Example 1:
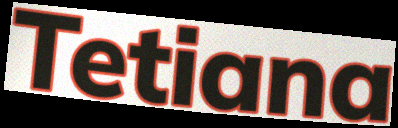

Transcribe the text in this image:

Tetiana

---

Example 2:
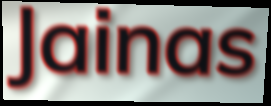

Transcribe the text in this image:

Jainas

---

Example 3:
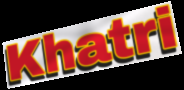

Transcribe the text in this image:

Khatri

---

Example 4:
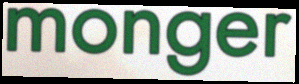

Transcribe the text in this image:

monger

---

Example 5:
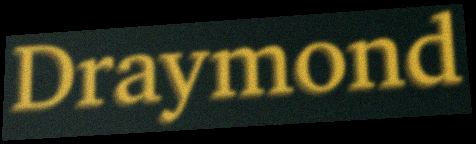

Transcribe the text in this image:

Draymond